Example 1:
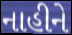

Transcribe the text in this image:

નાહીને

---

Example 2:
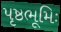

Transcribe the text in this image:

પૃષ્ઠભૂમિઃ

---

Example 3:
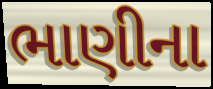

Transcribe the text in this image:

ભાણીના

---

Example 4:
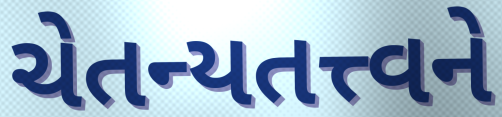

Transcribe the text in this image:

ચેતન્યતત્ત્વને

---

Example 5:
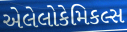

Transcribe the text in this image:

એલેલોકેમિકલ્સ